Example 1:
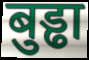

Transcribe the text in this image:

बुड्ढा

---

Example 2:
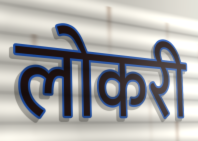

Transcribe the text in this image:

लोकरी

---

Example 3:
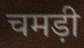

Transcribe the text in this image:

चमड़ी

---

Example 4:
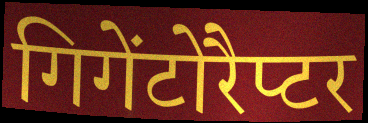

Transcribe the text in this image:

गिगेंटोरैप्टर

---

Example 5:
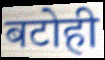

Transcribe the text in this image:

बटोही